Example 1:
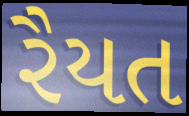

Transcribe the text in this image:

રૈયત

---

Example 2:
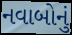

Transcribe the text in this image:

નવાબોનું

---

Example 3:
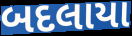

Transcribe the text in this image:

બદલાયા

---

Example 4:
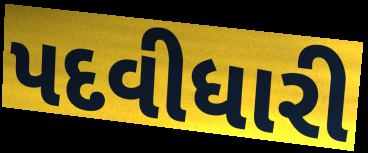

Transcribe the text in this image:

પદવીધારી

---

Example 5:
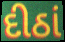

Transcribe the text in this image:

દીઠાં